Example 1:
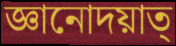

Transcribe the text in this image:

জ্ঞানোদয়াত্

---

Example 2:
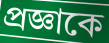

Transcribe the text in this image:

প্রজ্ঞাকে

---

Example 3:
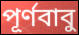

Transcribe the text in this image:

পূর্ণবাবু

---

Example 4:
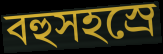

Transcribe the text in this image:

বহুসহস্রে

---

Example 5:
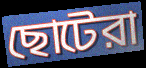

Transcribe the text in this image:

ছোটেরা